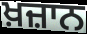
ਖ਼ਜ਼ਾਨ